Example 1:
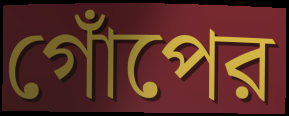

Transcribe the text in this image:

গোঁপের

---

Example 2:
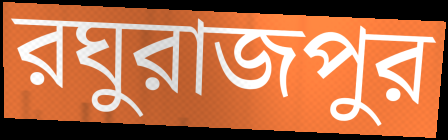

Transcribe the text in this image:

রঘুরাজপুর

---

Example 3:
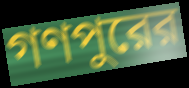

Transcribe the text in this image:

গণপুরের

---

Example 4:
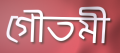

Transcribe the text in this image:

গৌতমী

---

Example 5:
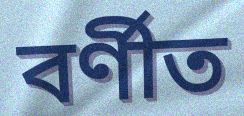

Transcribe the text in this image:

বর্ণীত